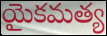
యైకమత్య